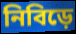
নিবিড়ে